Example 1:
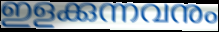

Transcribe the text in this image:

ഇളക്കുന്നവനും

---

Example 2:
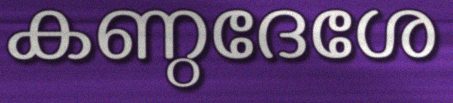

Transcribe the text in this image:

കണ്ഠദേശേ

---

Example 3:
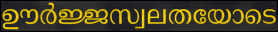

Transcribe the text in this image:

ഊർജ്ജസ്വലതയോടെ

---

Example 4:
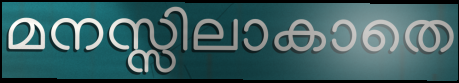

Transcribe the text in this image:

മനസ്സിലാകാതെ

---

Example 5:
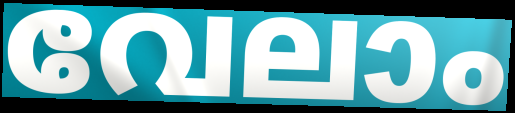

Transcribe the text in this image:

വേലാം